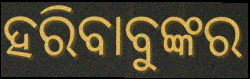
ହରିବାବୁଙ୍କର